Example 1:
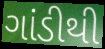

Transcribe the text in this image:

ગાંડીથી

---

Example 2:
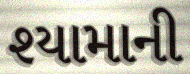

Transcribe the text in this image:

શ્યામાની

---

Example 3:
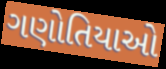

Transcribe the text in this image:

ગણોતિયાઓ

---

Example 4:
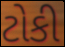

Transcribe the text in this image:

ટોકી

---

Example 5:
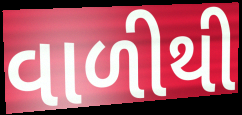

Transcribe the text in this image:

વાળીથી